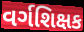
વર્ગશિક્ષક